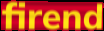
firend